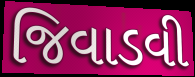
જિવાડવી